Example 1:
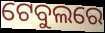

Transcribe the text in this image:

ଟେବୁଲରେ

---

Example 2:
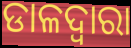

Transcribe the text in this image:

ଡାଳଦ୍ୱାରା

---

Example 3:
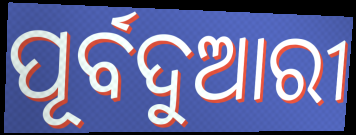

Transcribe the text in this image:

ପୂର୍ବଦୁଆରୀ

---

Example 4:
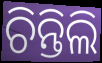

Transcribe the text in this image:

ଚିନ୍ତିଲି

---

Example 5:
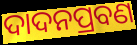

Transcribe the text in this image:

ଦାଦନପ୍ରବଣ